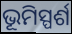
ଭୂମିସ୍ପର୍ଶ